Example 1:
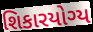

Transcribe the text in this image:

શિકારયોગ્ય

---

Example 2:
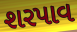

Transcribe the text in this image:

શરપાવ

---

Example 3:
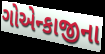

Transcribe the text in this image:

ગોએન્કાજીના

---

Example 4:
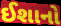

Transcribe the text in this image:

ઈશાનો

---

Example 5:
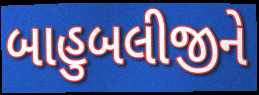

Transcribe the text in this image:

બાહુબલીજીને